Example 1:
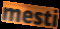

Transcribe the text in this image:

mesti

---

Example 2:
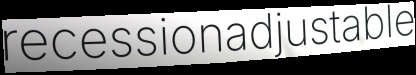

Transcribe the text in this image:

recessionadjustable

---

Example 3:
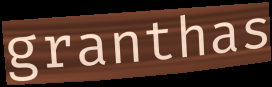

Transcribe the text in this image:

granthas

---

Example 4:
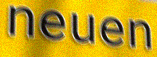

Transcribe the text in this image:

neuen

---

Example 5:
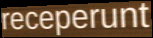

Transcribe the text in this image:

receperunt